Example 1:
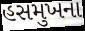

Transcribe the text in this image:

હસમુખના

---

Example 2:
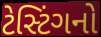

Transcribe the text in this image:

ટેસ્ટિંગનો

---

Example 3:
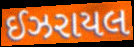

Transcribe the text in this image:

ઈઝરાયલ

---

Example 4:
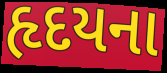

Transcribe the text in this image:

હૃદયના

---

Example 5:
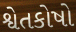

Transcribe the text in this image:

શ્વેતકોષો